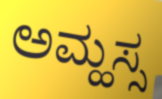
ಅಮ್ಹಸ್ಸ